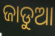
ଜାଡୁଆ